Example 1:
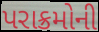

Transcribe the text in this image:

પરાક્રમોની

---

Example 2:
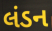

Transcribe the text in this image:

લંડન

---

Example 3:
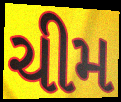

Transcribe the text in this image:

ચીમ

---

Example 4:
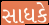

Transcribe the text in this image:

સાધકે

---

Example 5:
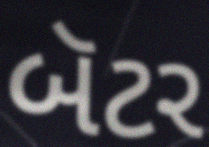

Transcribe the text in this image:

બૅટર